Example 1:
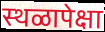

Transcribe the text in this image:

स्थळापेक्षा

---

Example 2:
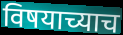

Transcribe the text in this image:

विषयाच्याच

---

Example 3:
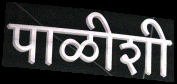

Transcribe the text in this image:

पाळीशी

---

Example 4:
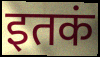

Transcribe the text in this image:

इतकं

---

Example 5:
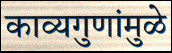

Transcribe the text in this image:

काव्यगुणांमुळे